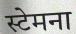
स्टेमना